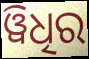
ୱିଧିର